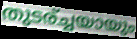
തുടര്ച്ചയായും